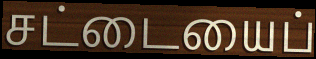
சட்டையைப்